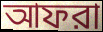
আফরা